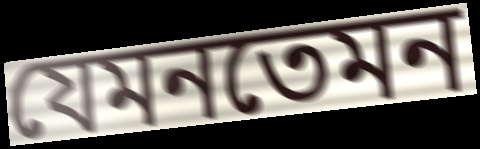
যেমনতেমন